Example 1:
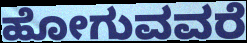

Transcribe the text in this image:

ಹೋಗುವವರೆ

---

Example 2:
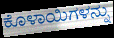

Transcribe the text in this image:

ಕೊಳಾಯಿಗಳನ್ನು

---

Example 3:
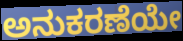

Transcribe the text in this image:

ಅನುಕರಣೆಯೇ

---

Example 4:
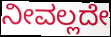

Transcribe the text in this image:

ನೀವಲ್ಲದೇ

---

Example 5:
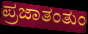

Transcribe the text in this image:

ಪ್ರಜಾತಂತುಂ